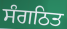
ਸੰਗਠਿਤ